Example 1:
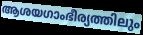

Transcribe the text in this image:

ആശയഗാംഭീര്യത്തിലും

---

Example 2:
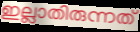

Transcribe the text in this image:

ഇല്ലാതിരുന്നത്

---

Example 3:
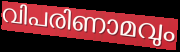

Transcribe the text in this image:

വിപരിണാമവും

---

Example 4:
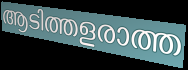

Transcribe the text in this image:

ആടിത്തളരാത്ത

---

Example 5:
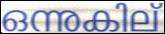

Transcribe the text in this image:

ഒന്നുകില്